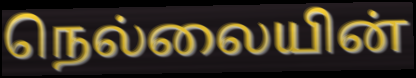
நெல்லையின்